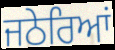
ਜਠੇਰਿਆਂ